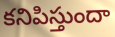
కనిపిస్తుందా